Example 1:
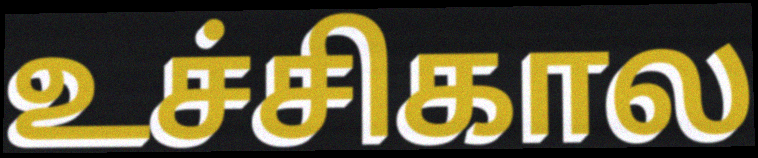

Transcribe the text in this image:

உச்சிகால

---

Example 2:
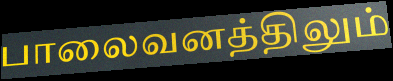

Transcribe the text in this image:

பாலைவனத்திலும்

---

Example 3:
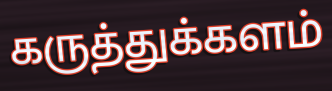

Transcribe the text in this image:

கருத்துக்களம்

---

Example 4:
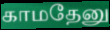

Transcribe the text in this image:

காமதேனு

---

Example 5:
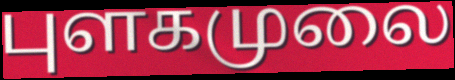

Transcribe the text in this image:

புளகமுலை